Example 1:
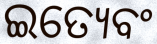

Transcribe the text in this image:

ଇତ୍ୟେବଂ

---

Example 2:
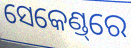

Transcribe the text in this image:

ସେକେଣ୍ଡ୍‌ରେ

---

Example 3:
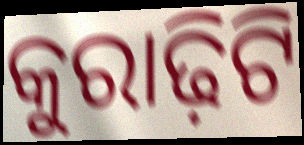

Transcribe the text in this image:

କୁରାଢ଼ିଟି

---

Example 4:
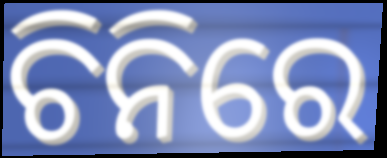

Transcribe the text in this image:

ଚିନିରେ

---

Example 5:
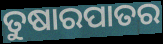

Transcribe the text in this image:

ତୁଷାରପାତର